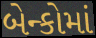
બેન્કોમાં